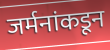
जर्मनांकडून